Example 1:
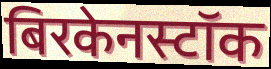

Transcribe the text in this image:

बिरकेनस्टॉक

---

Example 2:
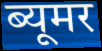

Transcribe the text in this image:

ब्यूमर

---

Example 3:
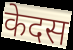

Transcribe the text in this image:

केदस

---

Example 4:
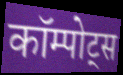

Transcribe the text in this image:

कॉम्पोट्स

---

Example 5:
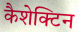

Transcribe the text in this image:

कैशेक्टिन